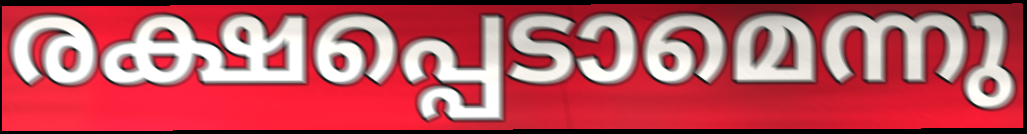
രക്ഷപ്പെടാമെന്നു